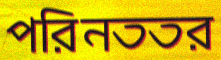
পরিনততর